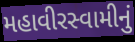
મહાવીરસ્વામીનું